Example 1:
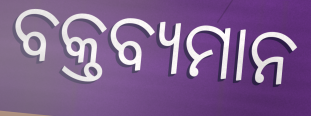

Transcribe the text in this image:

ବକ୍ତବ୍ୟମାନ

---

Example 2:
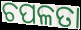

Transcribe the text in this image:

ଚପଳତା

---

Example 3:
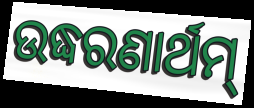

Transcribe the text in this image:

ଉଦ୍ଧରଣାର୍ଥମ୍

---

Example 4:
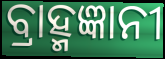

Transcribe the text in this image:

ବ୍ରାହ୍ମଜ୍ଞାନୀ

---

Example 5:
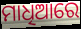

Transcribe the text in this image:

ମାଧିଆରେ